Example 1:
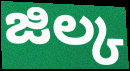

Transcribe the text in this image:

జిల్క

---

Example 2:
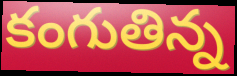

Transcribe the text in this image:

కంగుతిన్న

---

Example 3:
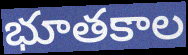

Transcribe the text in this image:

భూతకాల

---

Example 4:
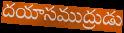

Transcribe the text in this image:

దయాసముద్రుడు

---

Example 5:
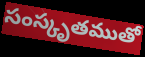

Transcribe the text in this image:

సంస్కృతముతో